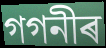
গগনীৰ